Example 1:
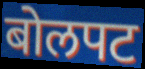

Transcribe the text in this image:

बोलपट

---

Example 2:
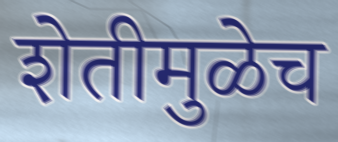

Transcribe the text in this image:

शेतीमुळेच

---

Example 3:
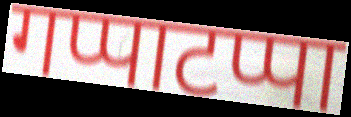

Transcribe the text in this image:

गप्पाटप्पा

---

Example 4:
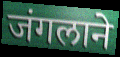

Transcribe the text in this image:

जंगलाने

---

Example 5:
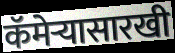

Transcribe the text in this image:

कॅमेऱ्यासारखी